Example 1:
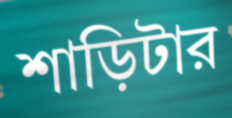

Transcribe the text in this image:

শাড়িটার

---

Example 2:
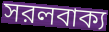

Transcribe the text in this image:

সরলবাক্য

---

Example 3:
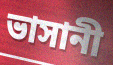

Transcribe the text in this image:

ভাসানী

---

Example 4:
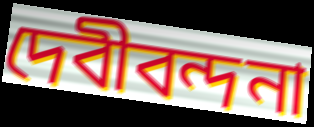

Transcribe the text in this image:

দেবীবন্দনা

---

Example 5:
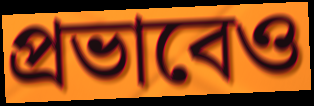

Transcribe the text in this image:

প্রভাবেও